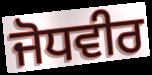
ਜੋਧਵੀਰ